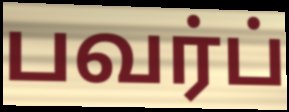
பவர்ப்